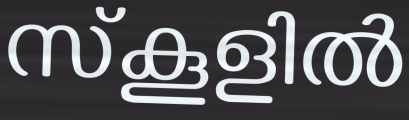
സ്‌കൂളിൽ